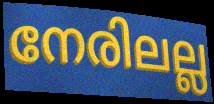
നേരിലല്ല